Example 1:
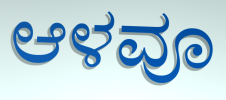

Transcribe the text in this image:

ಆಳವೂ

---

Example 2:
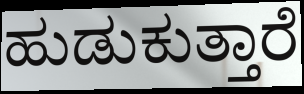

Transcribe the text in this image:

ಹುಡುಕುತ್ತಾರೆ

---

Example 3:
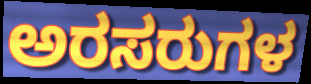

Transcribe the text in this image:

ಅರಸರುಗಳ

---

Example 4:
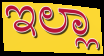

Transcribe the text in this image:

ಇಲ್ಲಾ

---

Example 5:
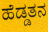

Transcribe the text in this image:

ಹೆಡ್ಡತನ